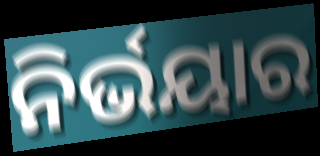
ନିର୍ଭୟାର